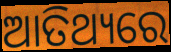
ଆତିଥ୍ୟରେ